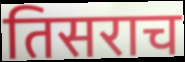
तिसराच